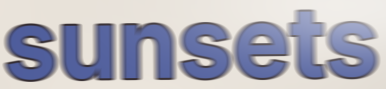
sunsets